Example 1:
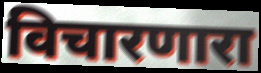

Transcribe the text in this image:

विचारणारा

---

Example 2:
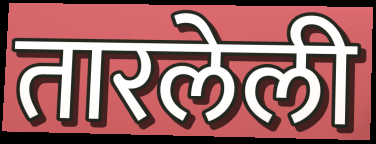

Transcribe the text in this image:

तारलेली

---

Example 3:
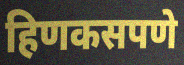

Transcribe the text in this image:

हिणकसपणे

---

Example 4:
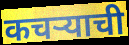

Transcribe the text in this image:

कचर्‍याची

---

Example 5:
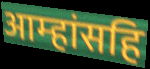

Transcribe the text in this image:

आम्हांसहि